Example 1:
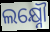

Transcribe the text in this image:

ଲକ୍ଷ୍ନୌ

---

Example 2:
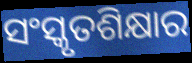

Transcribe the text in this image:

ସଂସ୍କୃତଶିକ୍ଷାର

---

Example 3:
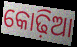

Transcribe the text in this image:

କୋଢ଼ିଆ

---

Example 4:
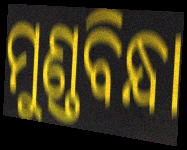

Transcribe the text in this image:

ମୁଣ୍ଡବିନ୍ଧା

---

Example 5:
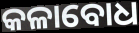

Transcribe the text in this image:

କଳାବୋଧ